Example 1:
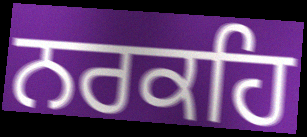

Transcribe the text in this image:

ਨਰਕਹਿ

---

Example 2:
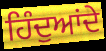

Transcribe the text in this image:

ਹਿੰਦੁਆਂਦੇ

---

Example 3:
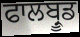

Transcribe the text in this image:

ਫਾਲਬ੍ਰੂਡ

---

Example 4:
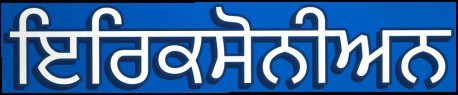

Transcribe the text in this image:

ਇਰਿਕਸੋਨੀਅਨ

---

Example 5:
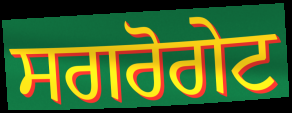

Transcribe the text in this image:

ਸਗਰੋਗੇਟ